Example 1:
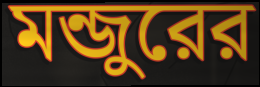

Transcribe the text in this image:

মন্জুরের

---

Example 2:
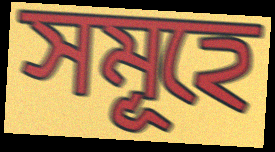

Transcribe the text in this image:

সমূহে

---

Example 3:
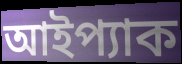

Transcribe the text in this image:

আইপ্যাক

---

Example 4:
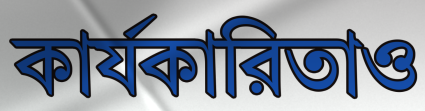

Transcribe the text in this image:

কার্যকারিতাও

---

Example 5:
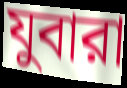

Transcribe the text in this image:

যুবারা